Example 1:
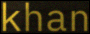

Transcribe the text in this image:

khan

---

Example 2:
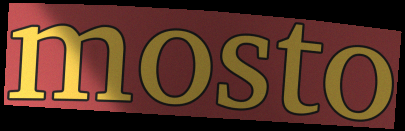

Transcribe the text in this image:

mosto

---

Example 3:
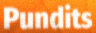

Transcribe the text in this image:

Pundits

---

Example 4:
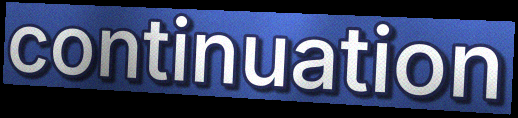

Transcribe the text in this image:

continuation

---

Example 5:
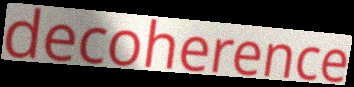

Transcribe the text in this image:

decoherence